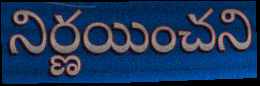
నిర్ణయించని